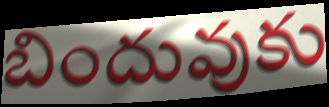
బిందువుకు